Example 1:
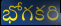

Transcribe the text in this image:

భోగకరి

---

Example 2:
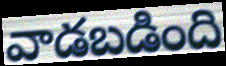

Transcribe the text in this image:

వాడబడింది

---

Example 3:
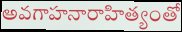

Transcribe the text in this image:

అవగాహనారాహిత్యంతో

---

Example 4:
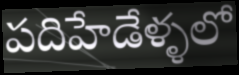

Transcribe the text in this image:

పదిహేడేళ్ళలో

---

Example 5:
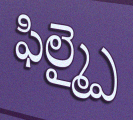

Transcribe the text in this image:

ఫిల్మ్పై